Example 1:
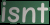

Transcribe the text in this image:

isnt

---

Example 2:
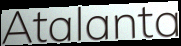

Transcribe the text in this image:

Atalanta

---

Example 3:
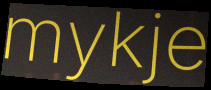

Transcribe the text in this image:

mykje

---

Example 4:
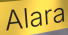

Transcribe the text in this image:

Alara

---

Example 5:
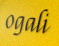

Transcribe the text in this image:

ogali